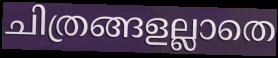
ചിത്രങ്ങളല്ലാതെ